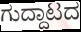
ಗುದ್ದಾಟದ